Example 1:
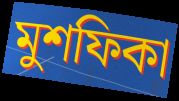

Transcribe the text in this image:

মুশফিকা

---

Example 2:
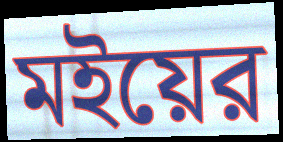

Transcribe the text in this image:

মইয়ের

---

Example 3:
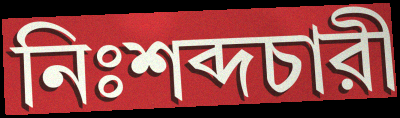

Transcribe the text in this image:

নিঃশব্দচারী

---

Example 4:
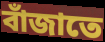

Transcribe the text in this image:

বাঁজাতে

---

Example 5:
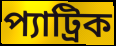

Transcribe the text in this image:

প্যাট্রিক